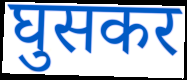
घुसकर